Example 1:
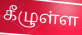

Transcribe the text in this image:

கீழுள்ள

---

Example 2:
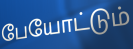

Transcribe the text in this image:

பேயோட்டும்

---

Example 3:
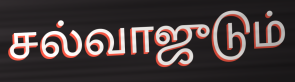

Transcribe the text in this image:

சல்வாஜுடும்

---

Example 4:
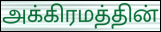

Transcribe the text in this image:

அக்கிரமத்தின்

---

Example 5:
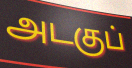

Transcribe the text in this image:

அடகுப்